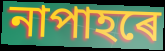
নাপাহৰে